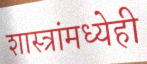
शास्त्रांमध्येही